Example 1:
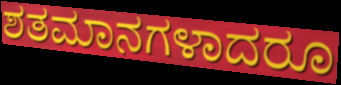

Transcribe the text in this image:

ಶತಮಾನಗಳಾದರೂ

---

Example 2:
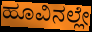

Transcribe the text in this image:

ಹೂವಿನಲ್ಲೇ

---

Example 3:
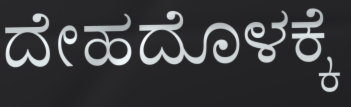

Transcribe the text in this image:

ದೇಹದೊಳಕ್ಕೆ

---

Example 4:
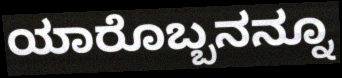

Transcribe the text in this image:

ಯಾರೊಬ್ಬನನ್ನೂ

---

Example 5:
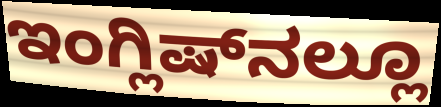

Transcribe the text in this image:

ಇಂಗ್ಲಿಷ್‌ನಲ್ಲೂ